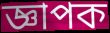
জ্ঞাপক